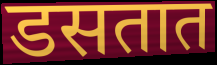
डसतात